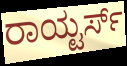
ರಾಯ್ಟರ್ಸ್